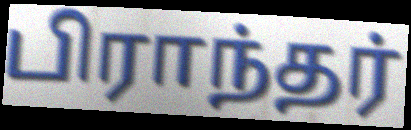
பிராந்தர்